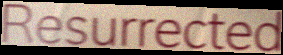
Resurrected